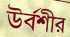
উর্বশীর